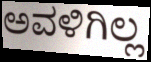
ಅವಳಿಗಿಲ್ಲ